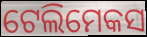
ଟେଲିମେକସ